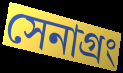
সেনাগ্রং